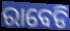
ରାବେଡି